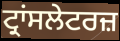
ਟ੍ਰਾਂਸਲੇਟਰਜ਼